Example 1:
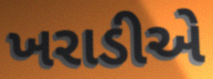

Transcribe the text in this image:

ખરાડીએ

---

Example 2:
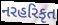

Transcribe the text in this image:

નરહરિકૃત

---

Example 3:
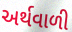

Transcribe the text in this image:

અર્થવાળી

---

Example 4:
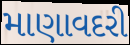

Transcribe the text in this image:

માણાવદરી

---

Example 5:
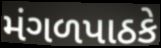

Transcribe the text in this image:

મંગળપાઠકે